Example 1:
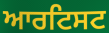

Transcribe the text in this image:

ਆਰਟਿਸਟ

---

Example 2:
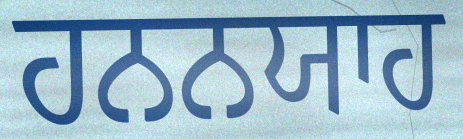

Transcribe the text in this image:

ਹਨਨਯਾਹ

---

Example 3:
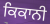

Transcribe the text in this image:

ਕਿਕਾਨੀ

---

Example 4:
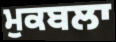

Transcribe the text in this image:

ਮੁਕਬਲਾ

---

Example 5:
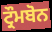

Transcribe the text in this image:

ਟ੍ਰੌਮਬੋਨ